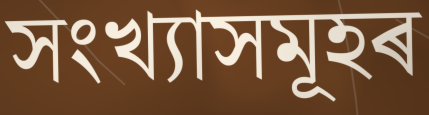
সংখ্যাসমূহৰ